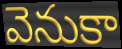
వెనుకా